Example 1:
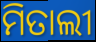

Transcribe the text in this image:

ମିତାଲୀ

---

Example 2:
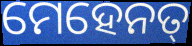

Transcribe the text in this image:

ମେହେନତ୍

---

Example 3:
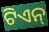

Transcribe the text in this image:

ଟିଏନ୍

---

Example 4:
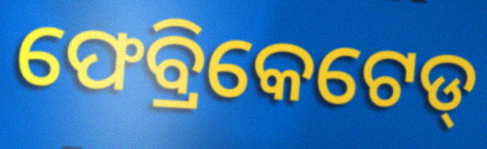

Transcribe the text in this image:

ଫେବ୍ରିକେଟେଡ୍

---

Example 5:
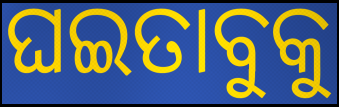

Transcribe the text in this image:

ଘଇତାବୁକୁ